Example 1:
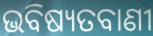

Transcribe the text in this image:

ଭବିଷ୍ୟତବାଣୀ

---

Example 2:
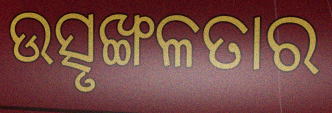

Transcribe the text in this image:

ଉତ୍ସୃଙ୍ଖଳତାର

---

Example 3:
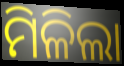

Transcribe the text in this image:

ମିଳିଲା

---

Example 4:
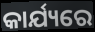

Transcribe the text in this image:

କାର୍ଯ୍ୟରେ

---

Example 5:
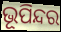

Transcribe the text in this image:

ଭୂପିନ୍ଦର